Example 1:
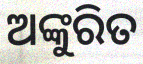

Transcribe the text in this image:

ଅଙ୍କୁରିତ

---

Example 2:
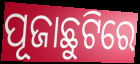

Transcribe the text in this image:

ପୂଜାଛୁଟିରେ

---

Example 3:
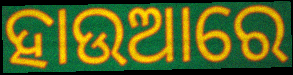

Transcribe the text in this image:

ହାଉଆରେ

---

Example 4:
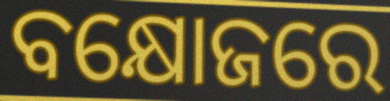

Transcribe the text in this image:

ବକ୍ଷୋଜରେ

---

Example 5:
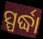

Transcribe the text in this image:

ସ୍ପର୍ଦ୍ଧା